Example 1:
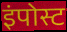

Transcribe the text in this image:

इंपोस्ट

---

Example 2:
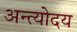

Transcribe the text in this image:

अन्त्योदय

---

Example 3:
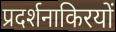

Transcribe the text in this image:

प्रदर्शनाकिरयों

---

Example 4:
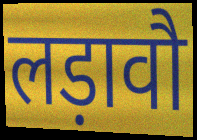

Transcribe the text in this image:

लड़ावौ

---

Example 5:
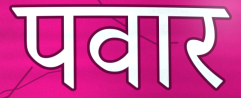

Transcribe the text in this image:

पवार